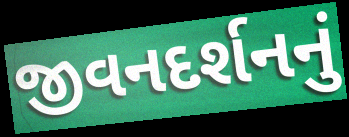
જીવનદર્શનનું